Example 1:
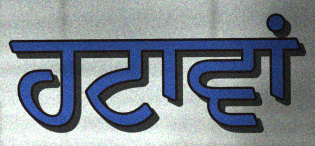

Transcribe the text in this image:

ਹਟਾਵਾਂ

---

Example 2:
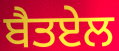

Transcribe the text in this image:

ਬੈਤਏਲ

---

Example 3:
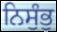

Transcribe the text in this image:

ਨਿਸੁੰਭੁ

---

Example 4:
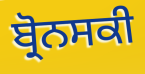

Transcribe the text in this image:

ਬ੍ਰੋਨਸਕੀ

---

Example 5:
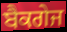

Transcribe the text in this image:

ਬੈਕਗੇਜ